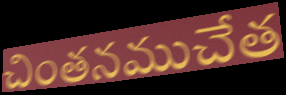
చింతనముచేత